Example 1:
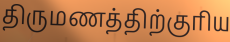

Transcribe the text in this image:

திருமணத்திற்குரிய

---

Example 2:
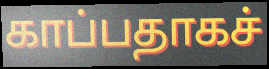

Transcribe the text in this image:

காப்பதாகச்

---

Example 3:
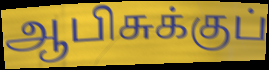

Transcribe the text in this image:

ஆபிசுக்குப்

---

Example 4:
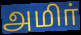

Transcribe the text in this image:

அமிர்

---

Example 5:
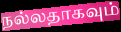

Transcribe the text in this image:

நல்லதாகவும்